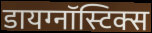
डायग्नॉस्टिक्स